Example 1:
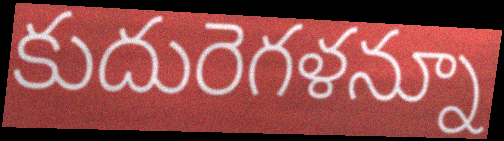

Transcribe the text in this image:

కుదురెగళన్నూ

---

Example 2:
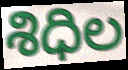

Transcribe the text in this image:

శిధిల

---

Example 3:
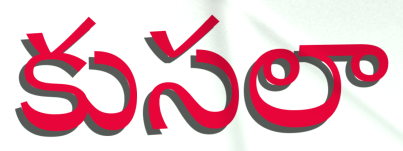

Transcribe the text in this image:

కుసలా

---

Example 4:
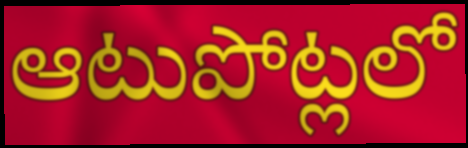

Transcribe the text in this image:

ఆటుపోట్లలో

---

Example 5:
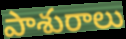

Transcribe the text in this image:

పాశురాలు